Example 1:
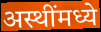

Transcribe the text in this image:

अस्थींमध्ये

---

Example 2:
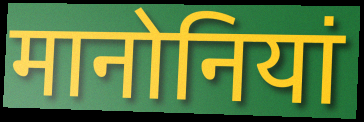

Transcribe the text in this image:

मानोनियां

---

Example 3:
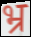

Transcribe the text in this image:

भ्र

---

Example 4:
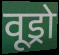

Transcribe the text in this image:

वूड्रो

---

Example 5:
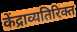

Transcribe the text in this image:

केंद्राव्यतिरिक्त